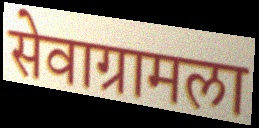
सेवाग्रामला